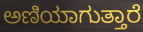
ಅಣಿಯಾಗುತ್ತಾರೆ